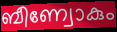
ബീണ്വോകും